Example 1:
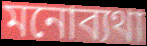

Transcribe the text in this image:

মনোব্যথা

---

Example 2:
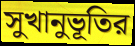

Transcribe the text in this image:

সুখানুভূতির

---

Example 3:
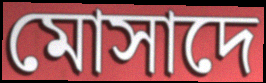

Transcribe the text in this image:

মোসাদে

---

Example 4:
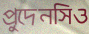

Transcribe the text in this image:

প্রুদেনসিও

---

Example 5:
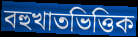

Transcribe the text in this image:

বহুখাতভিত্তিক